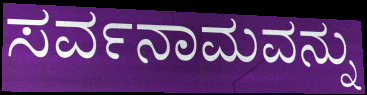
ಸರ್ವನಾಮವನ್ನು